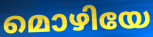
മൊഴിയേ